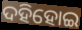
ଦହିହୋଇ